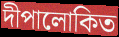
দীপালোকিত